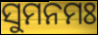
ସୁମନମଃ